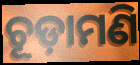
ଚୂଡ଼ାମଣି